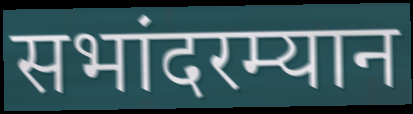
सभांदरम्यान